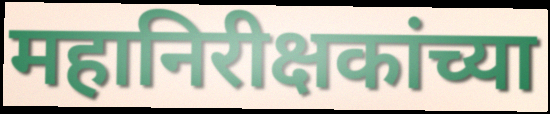
महानिरीक्षकांच्या